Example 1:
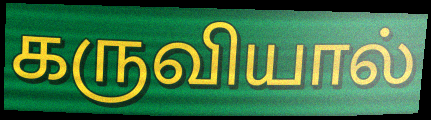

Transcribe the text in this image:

கருவியால்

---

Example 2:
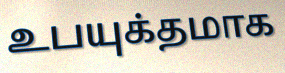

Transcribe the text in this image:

உபயுக்தமாக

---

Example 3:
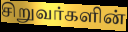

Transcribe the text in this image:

சிறுவர்களின்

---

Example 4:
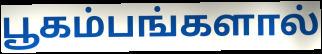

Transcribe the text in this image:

பூகம்பங்களால்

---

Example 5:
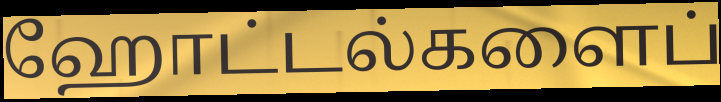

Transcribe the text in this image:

ஹோட்டல்களைப்